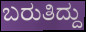
ಬರುತಿದ್ದು